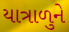
યાત્રાળુને